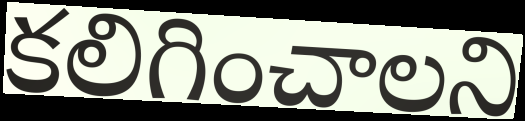
కలిగించాలని